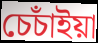
চেচাঁইয়া